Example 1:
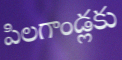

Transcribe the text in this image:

పిలగాండ్లకు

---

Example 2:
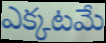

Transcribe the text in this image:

ఎక్కటమే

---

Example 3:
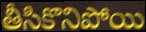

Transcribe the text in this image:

తీసికొనిపోయి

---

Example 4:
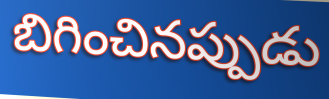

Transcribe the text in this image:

బిగించినప్పుడు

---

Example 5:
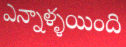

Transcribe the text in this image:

ఎన్నాళ్ళయింది